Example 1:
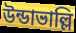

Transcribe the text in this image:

উন্ডাভাল্লি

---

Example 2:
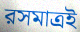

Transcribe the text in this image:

রসমাত্রই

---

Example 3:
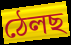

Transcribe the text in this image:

ঠেলছ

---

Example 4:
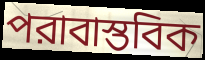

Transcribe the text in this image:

পরাবাস্তবিক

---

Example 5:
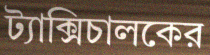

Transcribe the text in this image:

ট্যাক্সিচালকের